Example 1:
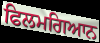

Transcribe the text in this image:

ਫਿਲਮਗਿਆਨ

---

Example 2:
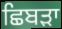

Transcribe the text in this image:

ਛਿਬੜਾ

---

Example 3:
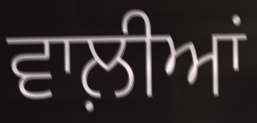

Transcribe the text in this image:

ਵਾਲ਼ੀਆਂ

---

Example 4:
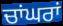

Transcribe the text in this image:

ਚਾਂਘਰਾਂ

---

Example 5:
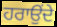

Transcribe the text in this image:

ਹਰਾਉਂਦੇ